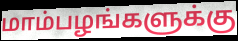
மாம்பழங்களுக்கு